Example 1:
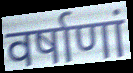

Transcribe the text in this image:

वर्षाणां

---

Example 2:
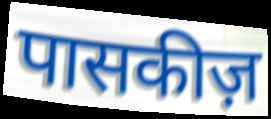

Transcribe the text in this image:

पासकीज़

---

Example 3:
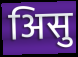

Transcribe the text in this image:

अिसु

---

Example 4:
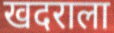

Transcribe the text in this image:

खदराला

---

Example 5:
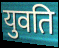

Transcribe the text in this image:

युवति